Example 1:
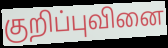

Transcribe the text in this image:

குறிப்புவினை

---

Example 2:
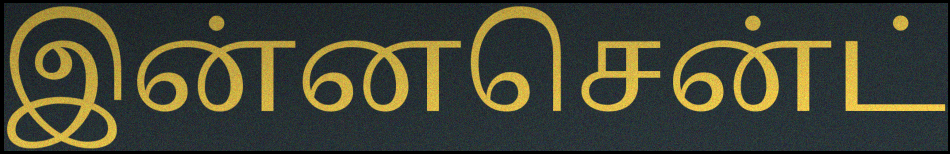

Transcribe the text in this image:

இன்னசென்ட்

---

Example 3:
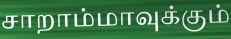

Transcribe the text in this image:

சாறாம்மாவுக்கும்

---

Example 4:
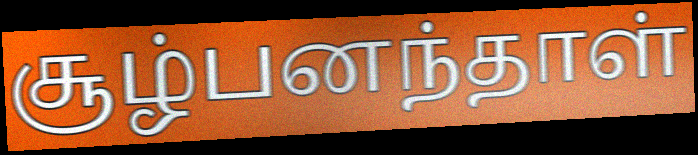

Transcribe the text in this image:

சூழ்பனந்தாள்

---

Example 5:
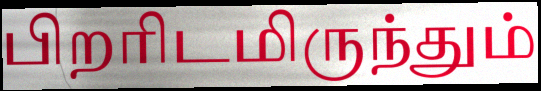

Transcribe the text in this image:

பிறரிடமிருந்தும்